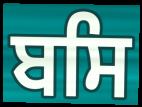
ਬਸਿ